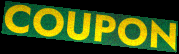
COUPON